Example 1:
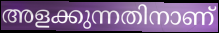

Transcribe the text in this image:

അളക്കുന്നതിനാണ്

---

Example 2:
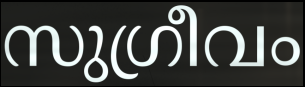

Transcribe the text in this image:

സുഗ്രീവം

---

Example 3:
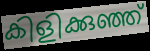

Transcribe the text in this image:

കിളിക്കുഞ്ഞ്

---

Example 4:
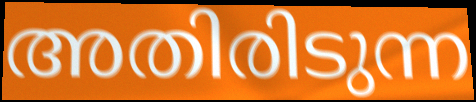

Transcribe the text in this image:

അതിരിടുന്ന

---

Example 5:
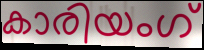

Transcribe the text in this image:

കാരിയംഗ്